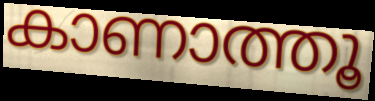
കാണാത്തൂ